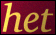
het